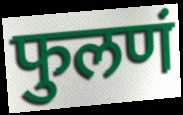
फुलणं